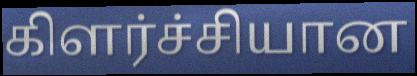
கிளர்ச்சியான